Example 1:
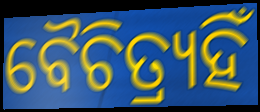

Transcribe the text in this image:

ବୈଚିତ୍ର୍ୟହିଁ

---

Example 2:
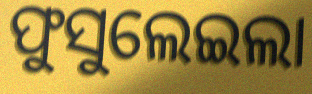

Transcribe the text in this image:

ଫୁସୁଲେଇଲା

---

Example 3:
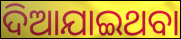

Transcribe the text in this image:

ଦିଆଯାଇଥବା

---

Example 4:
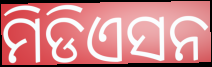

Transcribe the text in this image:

ମିଡିଏସନ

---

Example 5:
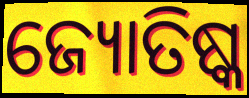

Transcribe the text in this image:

ଜ୍ୟୋତିଷ୍କ